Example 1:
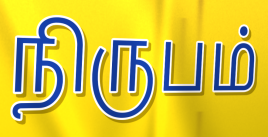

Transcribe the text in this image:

நிருபம்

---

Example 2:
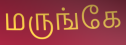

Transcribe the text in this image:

மருங்கே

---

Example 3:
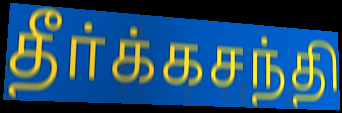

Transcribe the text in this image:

தீர்க்கசந்தி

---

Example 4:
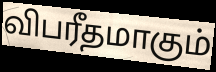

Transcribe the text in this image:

விபரீதமாகும்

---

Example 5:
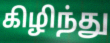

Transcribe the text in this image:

கிழிந்து